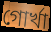
গোর্খা